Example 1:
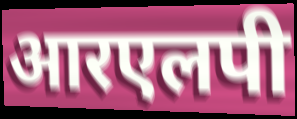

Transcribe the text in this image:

आरएलपी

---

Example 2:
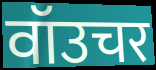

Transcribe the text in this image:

वॉउचर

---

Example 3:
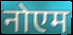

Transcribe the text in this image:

नोएम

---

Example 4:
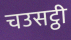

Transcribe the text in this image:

चउसट्ठी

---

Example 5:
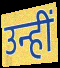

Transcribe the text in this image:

उन्हीं